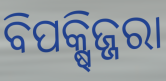
ବିପକ୍ଷ୍ଜ୍ଜିରା